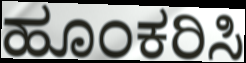
ಹೂಂಕರಿಸಿ